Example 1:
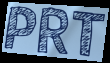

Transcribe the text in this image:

PRT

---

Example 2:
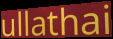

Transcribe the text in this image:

ullathai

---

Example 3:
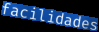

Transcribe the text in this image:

facilidades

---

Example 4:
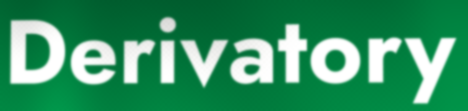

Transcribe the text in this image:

Derivatory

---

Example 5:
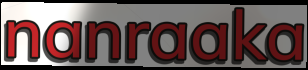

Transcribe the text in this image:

nanraaka